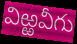
విఱ్ఱవీగు